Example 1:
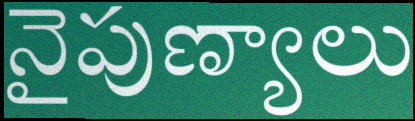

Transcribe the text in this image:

నైపుణ్యాలు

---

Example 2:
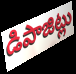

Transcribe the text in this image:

డిపాజిట్లు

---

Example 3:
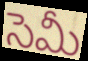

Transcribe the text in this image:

సెమీ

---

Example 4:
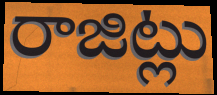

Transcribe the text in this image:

రాజిట్లు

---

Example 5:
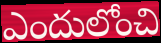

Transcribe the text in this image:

ఎందులోంచి